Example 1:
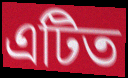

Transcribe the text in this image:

এটিত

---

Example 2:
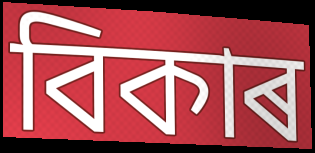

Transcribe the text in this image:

বিকাৰ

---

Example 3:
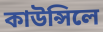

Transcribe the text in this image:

কাউন্সিলে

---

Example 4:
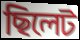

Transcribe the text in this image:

ছিলেট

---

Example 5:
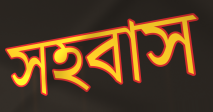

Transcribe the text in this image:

সহবাস